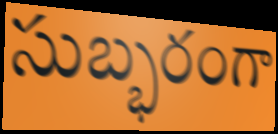
సుబ్భరంగా